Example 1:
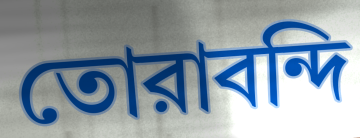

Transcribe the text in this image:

তোরাবন্দি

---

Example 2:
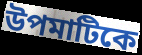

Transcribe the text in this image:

উপমাটিকে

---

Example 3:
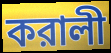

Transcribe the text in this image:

করালী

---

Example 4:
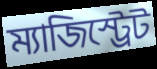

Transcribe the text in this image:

ম্যাজিস্ট্রেট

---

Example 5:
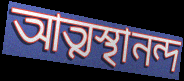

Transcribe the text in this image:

আত্মস্থানন্দ